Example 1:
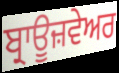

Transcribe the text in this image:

ਬ੍ਰਾਊਜ਼ਵੇਅਰ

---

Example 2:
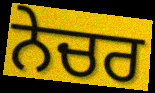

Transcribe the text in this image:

ਨੇਚਰ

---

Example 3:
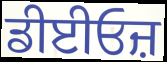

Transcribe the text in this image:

ਡੀਈਓਜ਼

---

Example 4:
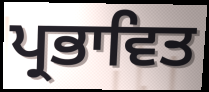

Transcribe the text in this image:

ਪ੍ਰਭਾਵਿਤ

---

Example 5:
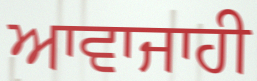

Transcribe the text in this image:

ਆਵਾਜਾਹੀ